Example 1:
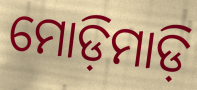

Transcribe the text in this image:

ମୋଡ଼ିମାଡ଼ି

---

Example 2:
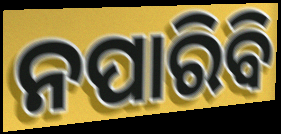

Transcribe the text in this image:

ନପାରିବି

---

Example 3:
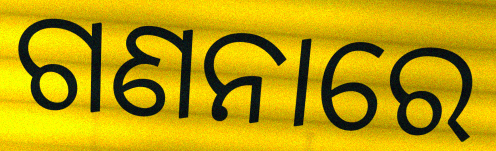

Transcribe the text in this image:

ଗଣନାରେ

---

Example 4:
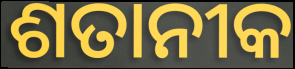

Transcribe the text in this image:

ଶତାନୀକ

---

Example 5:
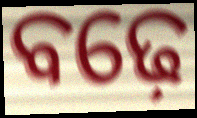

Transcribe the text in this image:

ବଢ଼େ